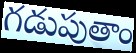
గడుపుతాం